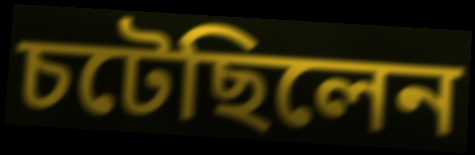
চটেছিলেন